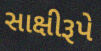
સાક્ષીરૂપે